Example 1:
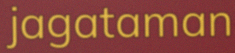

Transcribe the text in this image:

jagataman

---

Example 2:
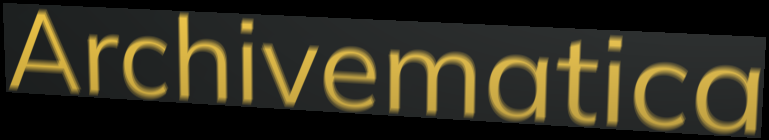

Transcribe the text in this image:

Archivematica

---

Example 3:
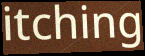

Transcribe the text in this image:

itching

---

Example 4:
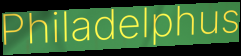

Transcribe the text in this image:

Philadelphus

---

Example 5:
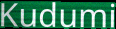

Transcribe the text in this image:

Kudumi